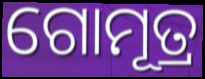
ଗୋମୂତ୍ର